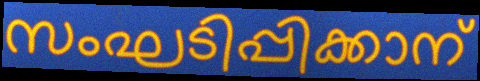
സംഘടിപ്പിക്കാന്